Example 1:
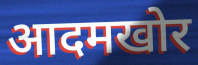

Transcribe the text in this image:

आदमखोर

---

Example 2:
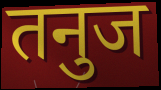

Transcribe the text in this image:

तनुज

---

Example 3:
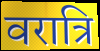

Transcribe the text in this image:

वरात्रि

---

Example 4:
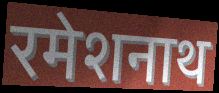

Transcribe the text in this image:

रमेशनाथ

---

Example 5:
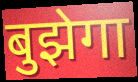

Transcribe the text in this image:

बुझेगा